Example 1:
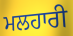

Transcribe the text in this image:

ਮਲਹਾਰੀ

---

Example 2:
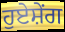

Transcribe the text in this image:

ਹੁਏਸ਼ੇਂਗ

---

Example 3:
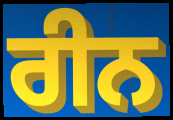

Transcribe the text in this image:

ਰੀਨ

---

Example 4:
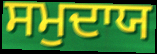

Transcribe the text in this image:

ਸਮੁਦਾਯ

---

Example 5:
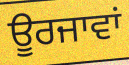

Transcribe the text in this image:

ਊਰਜਾਵਾਂ